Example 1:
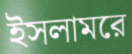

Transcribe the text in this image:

ইসলামরে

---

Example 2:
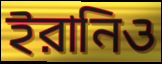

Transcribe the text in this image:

ইরানিও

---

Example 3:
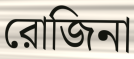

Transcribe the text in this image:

রোজিনা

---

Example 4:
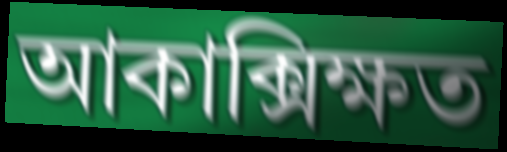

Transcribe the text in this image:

আকাক্সিক্ষত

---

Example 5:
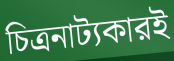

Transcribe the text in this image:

চিত্রনাট্যকারই